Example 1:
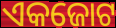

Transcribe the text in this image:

ଏକଜୋଟ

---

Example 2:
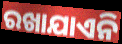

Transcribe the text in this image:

ରଖାଯାଏନି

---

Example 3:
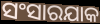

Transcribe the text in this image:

ସଂସାରଯାକ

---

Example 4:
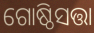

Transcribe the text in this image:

ଗୋଷ୍ଠିସତ୍ତା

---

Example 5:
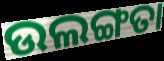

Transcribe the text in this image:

ଉଲଙ୍ଗତା